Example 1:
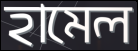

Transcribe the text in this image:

হামেল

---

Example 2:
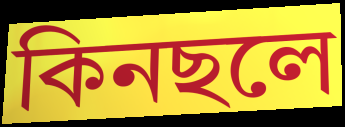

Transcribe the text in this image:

কিনছলে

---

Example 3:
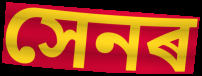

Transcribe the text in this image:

সেনৰ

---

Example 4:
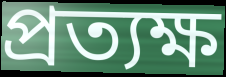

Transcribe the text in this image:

প্ৰত্যক্ষ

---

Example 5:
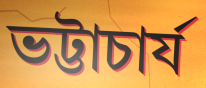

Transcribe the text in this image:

ভট্টাচাৰ্য